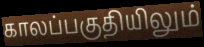
காலப்பகுதியிலும்